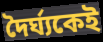
দৈর্ঘ্যকেই